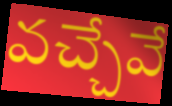
వచ్చేవే